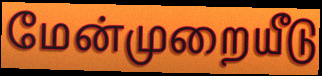
மேன்முறையீடு